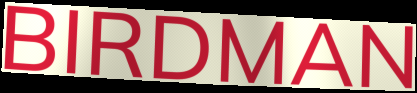
BIRDMAN